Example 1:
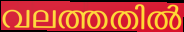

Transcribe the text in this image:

വലത്തതിൽ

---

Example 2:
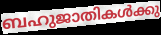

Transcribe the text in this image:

ബഹുജാതികൾക്കു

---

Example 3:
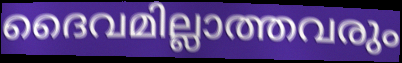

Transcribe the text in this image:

ദൈവമില്ലാത്തവരും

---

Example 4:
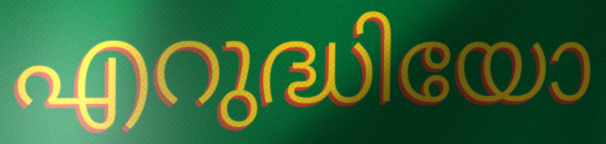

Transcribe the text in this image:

എറുദ്ധിയോ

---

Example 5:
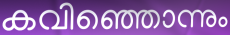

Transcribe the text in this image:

കവിഞ്ഞൊന്നും